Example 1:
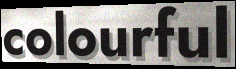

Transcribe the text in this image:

colourful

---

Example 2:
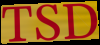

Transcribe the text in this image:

TSD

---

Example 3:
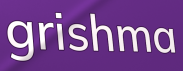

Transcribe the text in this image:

grishma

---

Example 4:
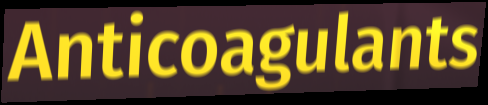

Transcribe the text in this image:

Anticoagulants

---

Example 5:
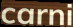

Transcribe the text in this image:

carni